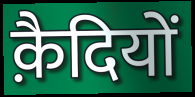
क़ैदियों